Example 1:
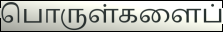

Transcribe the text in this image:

பொருள்களைப்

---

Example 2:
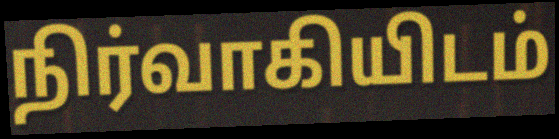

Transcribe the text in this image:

நிர்வாகியிடம்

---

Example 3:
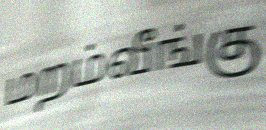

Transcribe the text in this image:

மறம்வீங்கு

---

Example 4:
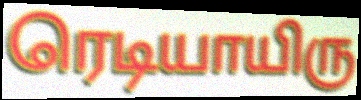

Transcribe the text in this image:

ரெடியாயிரு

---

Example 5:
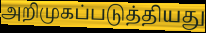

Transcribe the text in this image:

அறிமுகப்படுத்தியது